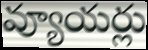
వ్యూయర్లు